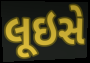
લૂઇસે